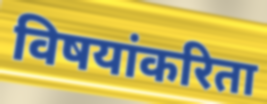
विषयांकरिता